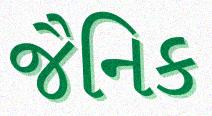
જૈનિક